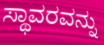
ಸ್ಥಾವರವನ್ನು